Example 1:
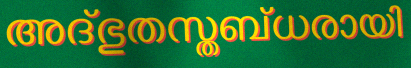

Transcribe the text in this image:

അദ്ഭുതസ്തബ്ധരായി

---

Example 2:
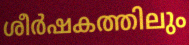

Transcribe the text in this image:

ശീർഷകത്തിലും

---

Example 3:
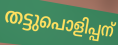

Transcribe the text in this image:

തട്ടുപൊളിപ്പന്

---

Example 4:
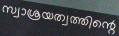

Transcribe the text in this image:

സ്വാശ്രയത്വത്തിന്റെ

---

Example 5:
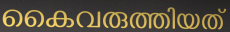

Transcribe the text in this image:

കൈവരുത്തിയത്